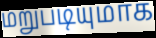
மறுபடியுமாக